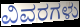
ವಿವರಗಳು